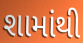
શામાંથી